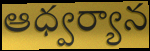
ఆధ్వర్యాన